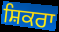
ਸ਼ਿਕਰਾ